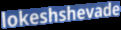
lokeshshevade